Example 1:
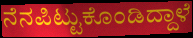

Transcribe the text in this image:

ನೆನಪಿಟ್ಟುಕೊಂಡಿದ್ದಾಳೆ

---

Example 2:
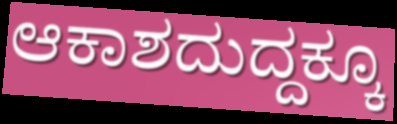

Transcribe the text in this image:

ಆಕಾಶದುದ್ದಕ್ಕೂ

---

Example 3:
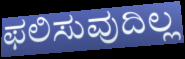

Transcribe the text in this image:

ಫಲಿಸುವುದಿಲ್ಲ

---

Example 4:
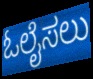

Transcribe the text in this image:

ಓಲೈಸಲು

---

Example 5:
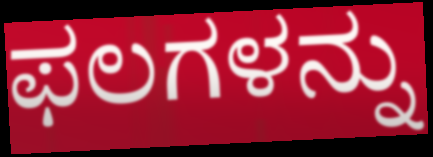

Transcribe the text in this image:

ಫಲಗಳನ್ನು